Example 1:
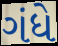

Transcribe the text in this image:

ગંધે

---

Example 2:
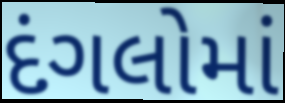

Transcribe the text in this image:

દંગલોમાં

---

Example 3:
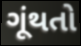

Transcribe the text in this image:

ગૂંથતો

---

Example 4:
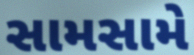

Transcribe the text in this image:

સામસામે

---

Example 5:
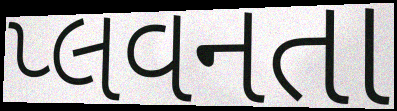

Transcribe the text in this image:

પ્લવનતા